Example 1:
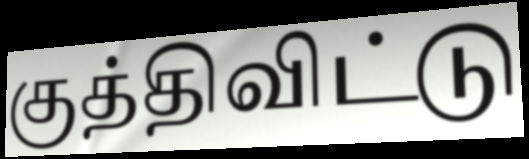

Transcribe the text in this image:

குத்திவிட்டு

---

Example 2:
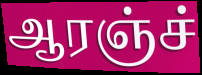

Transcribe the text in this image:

ஆரஞ்ச்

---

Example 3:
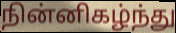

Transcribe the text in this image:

நின்னிகழ்ந்து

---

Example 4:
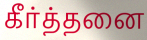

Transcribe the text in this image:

கீர்த்தனை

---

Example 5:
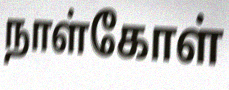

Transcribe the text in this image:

நாள்கோள்